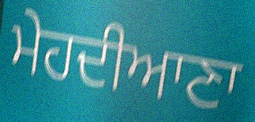
ਮੇਹਦੀਆਣਾ